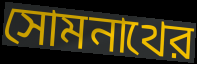
সোমনাথের